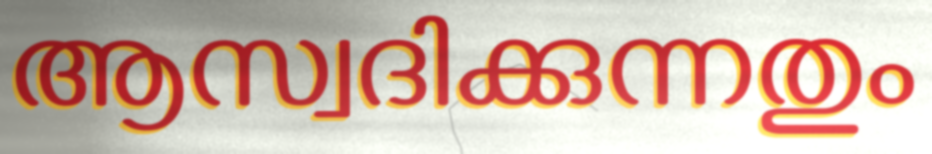
ആസ്വദിക്കുന്നതും